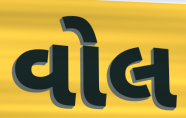
વોલ